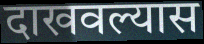
दाखवल्यास